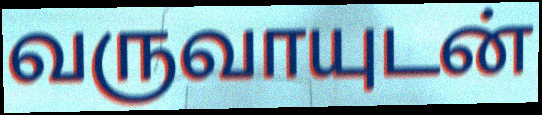
வருவாயுடன்